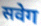
सवेग